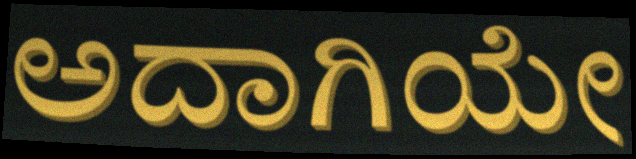
ಅದಾಗಿಯೇ